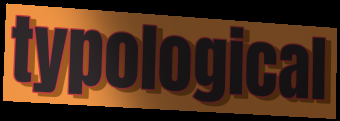
typological